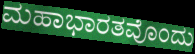
ಮಹಾಭಾರತವೊಂದು